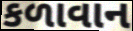
કળાવાન